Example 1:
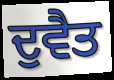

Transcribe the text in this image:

ਦੁਵੈਤ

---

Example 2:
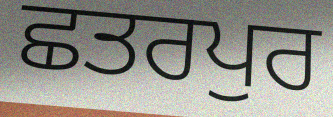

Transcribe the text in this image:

ਛਤਰਪੁਰ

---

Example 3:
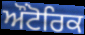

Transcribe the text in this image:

ਔਂਟੋਰਿਕ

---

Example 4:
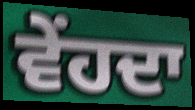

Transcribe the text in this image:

ਵੇਂਹਦਾ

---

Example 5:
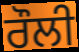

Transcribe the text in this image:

ਰੌਲੀ